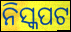
ନିସ୍କପଟ